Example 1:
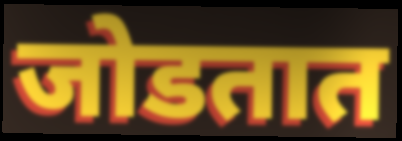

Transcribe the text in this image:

जोडतात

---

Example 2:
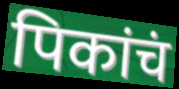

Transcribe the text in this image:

पिकांचं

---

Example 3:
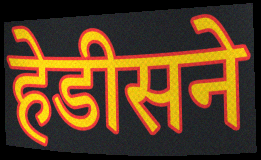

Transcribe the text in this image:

हेडीसने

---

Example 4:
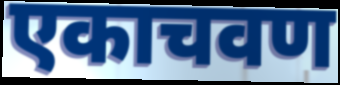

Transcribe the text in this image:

एकाचवण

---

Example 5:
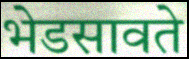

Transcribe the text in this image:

भेडसावते